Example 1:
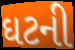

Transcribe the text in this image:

ઘટની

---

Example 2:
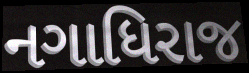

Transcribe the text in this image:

નગાધિરાજ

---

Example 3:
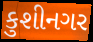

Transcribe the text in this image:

કુશીનગર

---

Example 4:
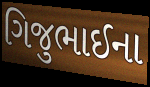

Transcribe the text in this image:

ગિજુભાઈના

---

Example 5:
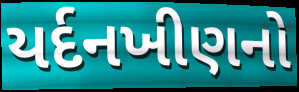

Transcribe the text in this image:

યર્દનખીણનો